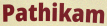
Pathikam